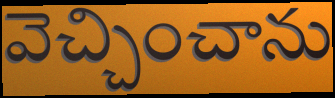
వెచ్చించాను